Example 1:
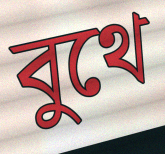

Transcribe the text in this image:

বুথে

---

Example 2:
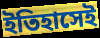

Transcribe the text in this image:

ইতিহাসেই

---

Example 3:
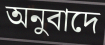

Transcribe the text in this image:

অনুবাদে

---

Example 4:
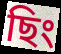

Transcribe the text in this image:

ছিং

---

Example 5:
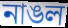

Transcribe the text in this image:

নাঙল